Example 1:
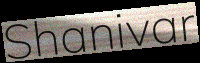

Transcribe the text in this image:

Shanivar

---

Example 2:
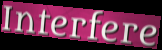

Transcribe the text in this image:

Interfere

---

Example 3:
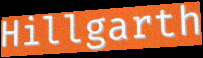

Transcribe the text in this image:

Hillgarth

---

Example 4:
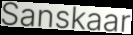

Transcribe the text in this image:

Sanskaar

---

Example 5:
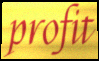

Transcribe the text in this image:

profit